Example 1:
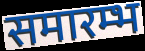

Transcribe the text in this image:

समारम्भ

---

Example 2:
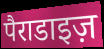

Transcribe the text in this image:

पैराडाइज़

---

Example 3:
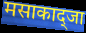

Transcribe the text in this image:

मसाकाद्जा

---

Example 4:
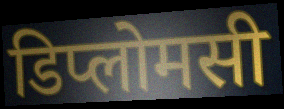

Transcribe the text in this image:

डिप्लोमसी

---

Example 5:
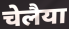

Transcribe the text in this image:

चेलैया